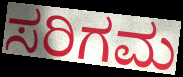
ಸರಿಗಮ